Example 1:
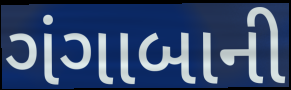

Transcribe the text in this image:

ગંગાબાની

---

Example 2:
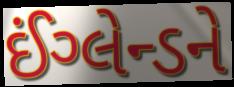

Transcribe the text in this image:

ઈંગ્લેન્ડને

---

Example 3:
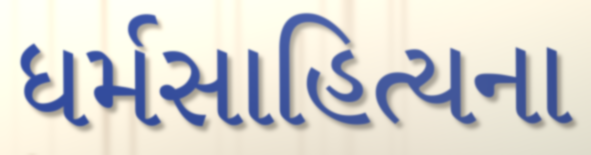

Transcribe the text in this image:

ધર્મસાહિત્યના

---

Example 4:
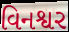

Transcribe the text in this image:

વિનશ્વર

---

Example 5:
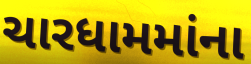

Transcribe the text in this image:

ચારધામમાંના